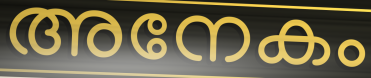
അനേകം